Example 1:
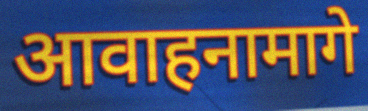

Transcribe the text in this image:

आवाहनामागे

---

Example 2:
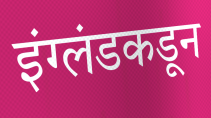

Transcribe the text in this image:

इंग्लंडकडून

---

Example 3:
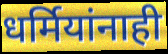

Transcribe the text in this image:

धर्मियांनाही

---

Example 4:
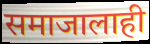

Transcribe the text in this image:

समाजालाही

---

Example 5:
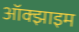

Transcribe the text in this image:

ऑक्झाइम